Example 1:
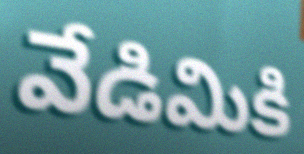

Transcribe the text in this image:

వేడిమికి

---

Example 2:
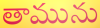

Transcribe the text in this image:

తామును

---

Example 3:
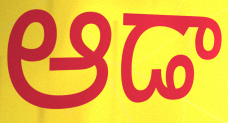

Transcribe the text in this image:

ఆడా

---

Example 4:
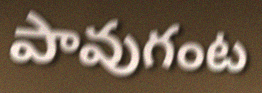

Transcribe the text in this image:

పావుగంట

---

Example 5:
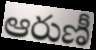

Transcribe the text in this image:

ఆరుణీ